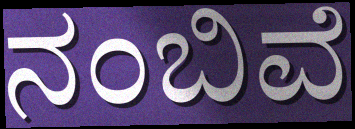
ನಂಬಿವೆ